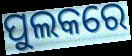
ପୁଲକରେ